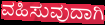
ವಹಿಸುವುದಾಗಿ